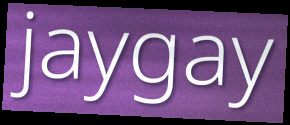
jaygay